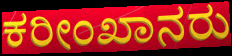
ಕರೀಂಖಾನರು